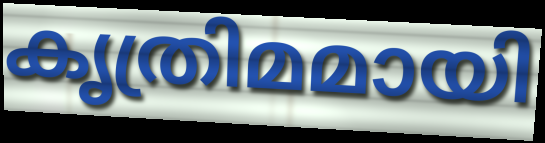
കൃത്രിമമായി